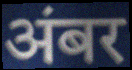
अंबर